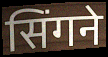
सिंगने